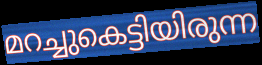
മറച്ചുകെട്ടിയിരുന്ന